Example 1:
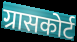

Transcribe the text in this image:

ग्रासकोर्ट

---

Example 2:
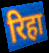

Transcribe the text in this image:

रिहा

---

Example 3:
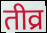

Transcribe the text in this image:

तीव्र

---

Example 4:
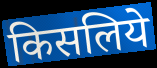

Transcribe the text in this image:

किसलिये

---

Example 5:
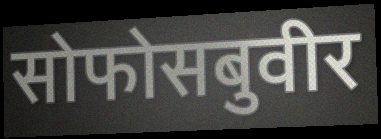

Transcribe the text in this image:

सोफोसबुवीर